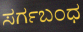
ಸರ್ಗಬಂಧ